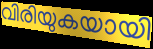
വിരിയുകയായി